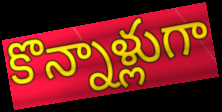
కొన్నాళ్లుగా